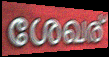
ശേഖര്